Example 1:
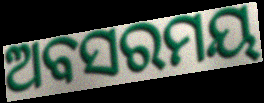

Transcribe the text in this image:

ଅବସରମୟ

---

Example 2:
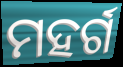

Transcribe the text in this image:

ମହର୍ଗ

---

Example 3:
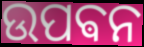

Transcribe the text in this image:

ଉପଵନ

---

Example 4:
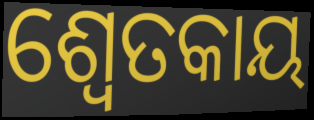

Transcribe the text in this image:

ଶ୍ବେତକାୟ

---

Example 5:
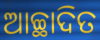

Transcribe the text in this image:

ଆଚ୍ଛାଦିତ